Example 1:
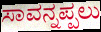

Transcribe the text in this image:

ಸಾವನ್ನಪ್ಪಲು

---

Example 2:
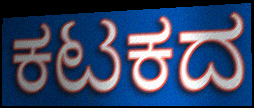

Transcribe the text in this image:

ಕಟಕದ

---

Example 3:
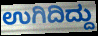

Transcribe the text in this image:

ಉಗಿದಿದ್ದು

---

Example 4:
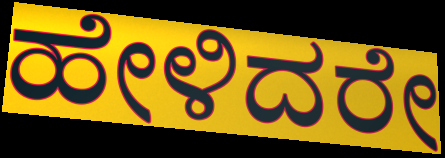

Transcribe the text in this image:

ಹೇಳಿದರೇ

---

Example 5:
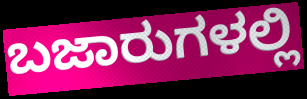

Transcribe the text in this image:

ಬಜಾರುಗಳಲ್ಲಿ